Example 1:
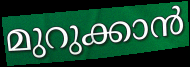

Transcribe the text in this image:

മുറുക്കാൻ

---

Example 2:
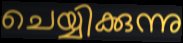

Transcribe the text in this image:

ചെയ്യിക്കുന്നു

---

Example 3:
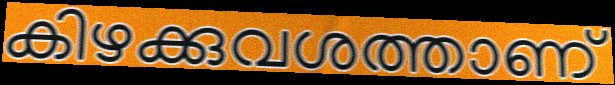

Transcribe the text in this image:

കിഴക്കുവശത്താണ്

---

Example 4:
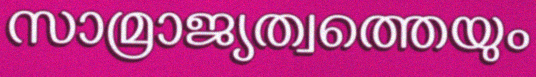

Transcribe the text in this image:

സാമ്രാജ്യത്വത്തെയും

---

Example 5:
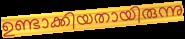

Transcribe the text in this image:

ഉണ്ടാക്കിയതായിരുന്നു